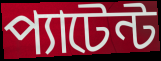
প্যাটেন্ট